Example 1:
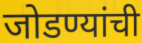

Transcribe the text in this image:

जोडण्यांची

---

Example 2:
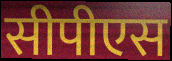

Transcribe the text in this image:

सीपीएस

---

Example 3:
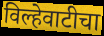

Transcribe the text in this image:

विल्हेवाटीचा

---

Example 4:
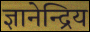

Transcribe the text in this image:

ज्ञानेन्द्रिय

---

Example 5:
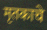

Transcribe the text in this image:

मृतकाचे